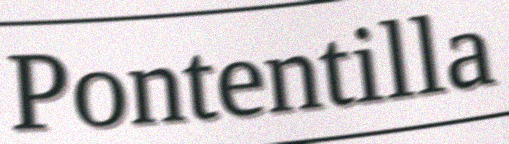
Pontentilla